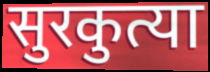
सुरकुत्या